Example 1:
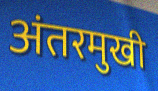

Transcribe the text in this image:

अंतरमुखी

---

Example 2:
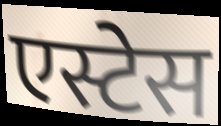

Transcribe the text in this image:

एस्टेस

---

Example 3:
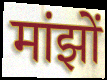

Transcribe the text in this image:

मांझों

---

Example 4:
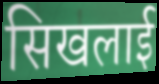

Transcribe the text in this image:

सिखलाई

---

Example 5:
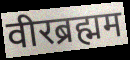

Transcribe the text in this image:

वीरब्रह्मम